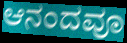
ಆನಂದವೂ